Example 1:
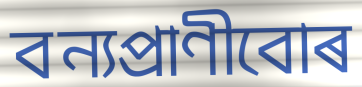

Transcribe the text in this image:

বন্যপ্ৰাণীবোৰ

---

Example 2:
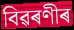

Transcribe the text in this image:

বিৱৰণীৰ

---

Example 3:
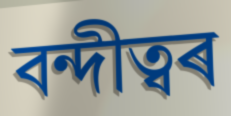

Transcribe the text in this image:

বন্দীত্বৰ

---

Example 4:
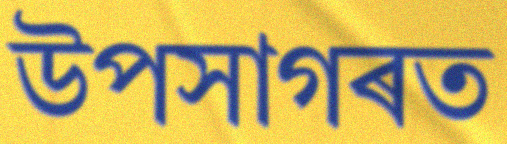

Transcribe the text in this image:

উপসাগৰত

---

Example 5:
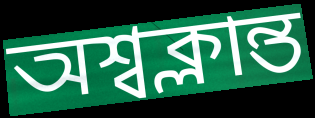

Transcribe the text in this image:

অশ্বক্লান্ত